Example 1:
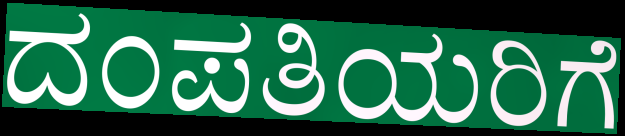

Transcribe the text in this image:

ದಂಪತಿಯರಿಗೆ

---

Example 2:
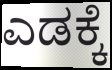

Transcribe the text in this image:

ಎಡಕ್ಕೆ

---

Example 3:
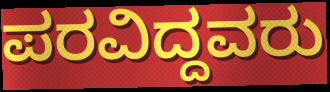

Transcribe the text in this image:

ಪರವಿದ್ದವರು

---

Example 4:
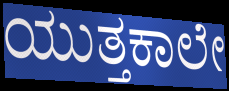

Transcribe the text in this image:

ಯುತ್ತಕಾಲೇ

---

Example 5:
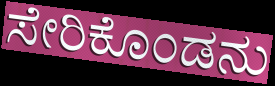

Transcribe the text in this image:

ಸೇರಿಕೊಂಡನು